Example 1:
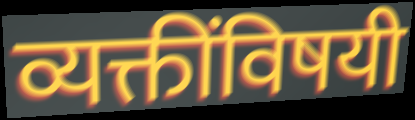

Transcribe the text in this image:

व्यक्तींविषयी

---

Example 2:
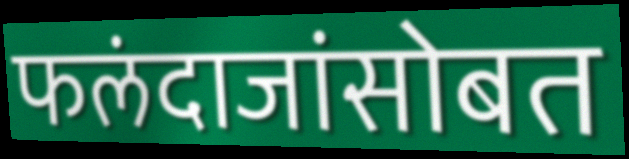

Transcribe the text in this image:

फलंदाजांसोबत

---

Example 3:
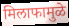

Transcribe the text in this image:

मिलाफामुळे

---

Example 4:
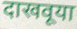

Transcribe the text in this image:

दाखवूया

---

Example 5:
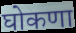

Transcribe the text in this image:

घोकणा